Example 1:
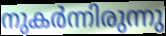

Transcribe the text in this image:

നുകർന്നിരുന്നു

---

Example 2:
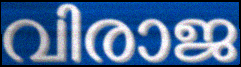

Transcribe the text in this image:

വിരാജ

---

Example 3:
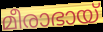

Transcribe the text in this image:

മീരാഭായ്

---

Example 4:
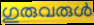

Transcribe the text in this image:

ഗുരുവരുൾ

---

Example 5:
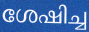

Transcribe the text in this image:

ശേഷിച്ച